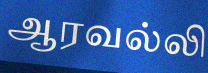
ஆரவல்லி